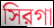
সিরগা